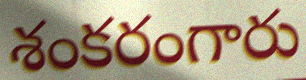
శంకరంగారు